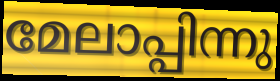
മേലാപ്പിന്നു